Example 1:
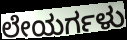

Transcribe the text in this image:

ಲೇಯರ್ಗಳು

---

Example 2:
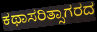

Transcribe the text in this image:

ಕಥಾಸರಿತ್ಸಾಗರದ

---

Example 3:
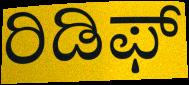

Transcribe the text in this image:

ರಿಡಿಫ್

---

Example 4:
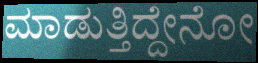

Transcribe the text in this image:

ಮಾಡುತ್ತಿದ್ದೇನೋ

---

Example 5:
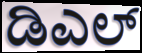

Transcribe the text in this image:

ಡಿಎಲ್